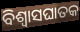
ବିଶ୍ୱାସଘାତକ